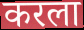
करला